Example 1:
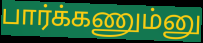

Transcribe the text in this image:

பார்க்கணும்னு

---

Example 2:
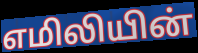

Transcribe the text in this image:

எமிலியின்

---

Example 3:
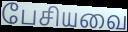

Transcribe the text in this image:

பேசியவை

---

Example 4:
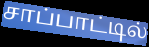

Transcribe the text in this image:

சாப்பாட்டில்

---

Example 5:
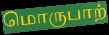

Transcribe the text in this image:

மொருபாற்